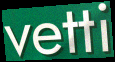
vetti